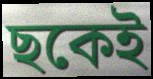
ছকেই